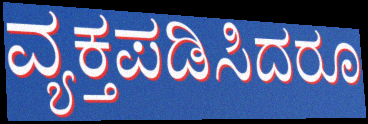
ವ್ಯಕ್ತಪಡಿಸಿದರೂ